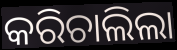
କରିଚାଲିଲା